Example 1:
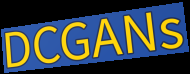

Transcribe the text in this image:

DCGANs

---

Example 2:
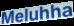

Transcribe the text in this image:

Meluhha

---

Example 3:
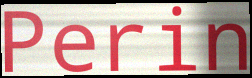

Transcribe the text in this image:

Perin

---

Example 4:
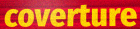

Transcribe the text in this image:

coverture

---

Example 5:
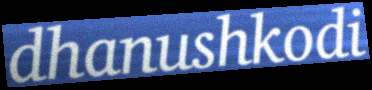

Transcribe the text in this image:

dhanushkodi